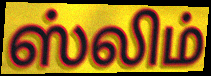
ஸ்லிம்